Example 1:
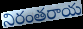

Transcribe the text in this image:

నిరంతరాయ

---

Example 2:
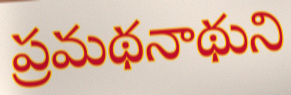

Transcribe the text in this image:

ప్రమథనాథుని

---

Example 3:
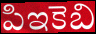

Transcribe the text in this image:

పిఇకెబి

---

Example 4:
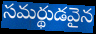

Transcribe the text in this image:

సమర్థుడవైన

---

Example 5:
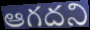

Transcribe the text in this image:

ఆగదని